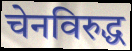
चेनविरुद्ध